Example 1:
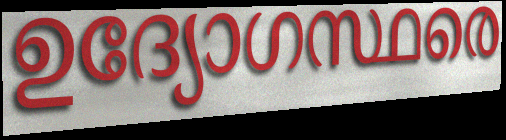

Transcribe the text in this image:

ഉദ്യോഗസ്ഥരെ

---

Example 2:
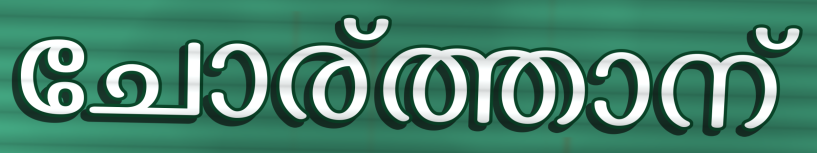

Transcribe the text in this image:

ചോര്ത്താന്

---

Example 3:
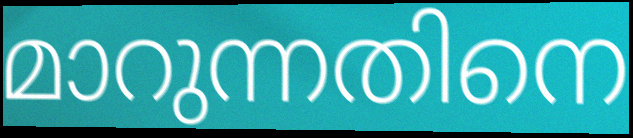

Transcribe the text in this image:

മാറുന്നതിനെ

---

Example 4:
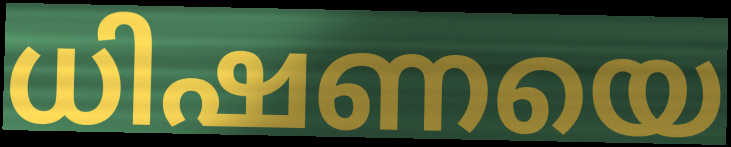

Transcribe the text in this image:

ധിഷണയെ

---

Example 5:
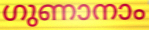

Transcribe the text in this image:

ഗുണാനാം